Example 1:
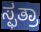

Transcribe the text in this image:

ಸ್ಫತ್ರಾ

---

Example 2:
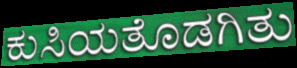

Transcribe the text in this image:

ಕುಸಿಯತೊಡಗಿತು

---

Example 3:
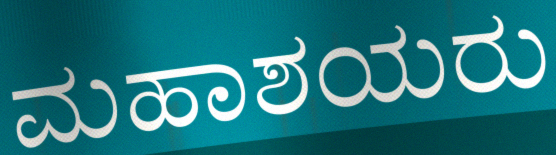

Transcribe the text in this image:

ಮಹಾಶಯರು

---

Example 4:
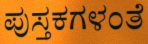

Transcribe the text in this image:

ಪುಸ್ತಕಗಳಂತೆ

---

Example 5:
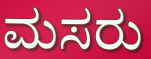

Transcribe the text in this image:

ಮಸರು